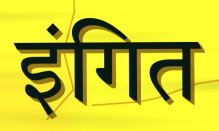
इंगित